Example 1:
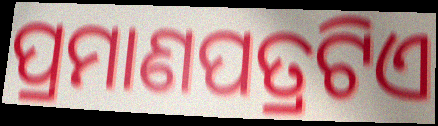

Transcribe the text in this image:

ପ୍ରମାଣପତ୍ରଟିଏ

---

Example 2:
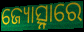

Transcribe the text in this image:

ଜ୍ୟୋତ୍ସ୍ନାରେ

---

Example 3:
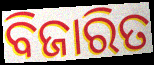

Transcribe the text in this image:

ବିଜାରିତ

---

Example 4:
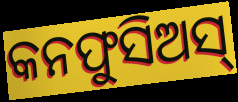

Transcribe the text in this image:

କନଫୁସିଅସ୍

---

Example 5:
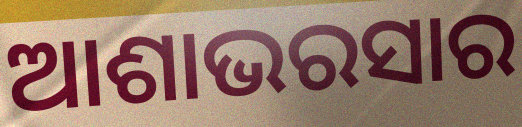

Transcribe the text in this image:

ଆଶାଭରସାର